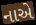
નાએ